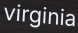
virginia